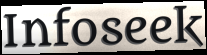
Infoseek